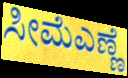
ಸೀಮೆಎಣ್ಣೆ